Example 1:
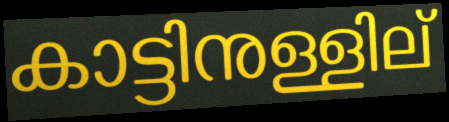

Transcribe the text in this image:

കാട്ടിനുള്ളില്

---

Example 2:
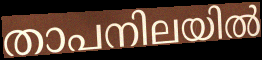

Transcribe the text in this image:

താപനിലയിൽ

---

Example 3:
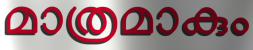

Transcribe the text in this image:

മാത്രമാകും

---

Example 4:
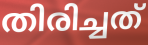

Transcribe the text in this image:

തിരിച്ചത്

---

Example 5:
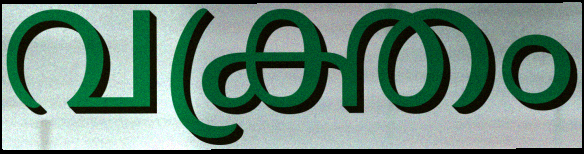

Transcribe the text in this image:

വക്ത്രം